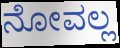
ನೋವಲ್ಲ